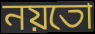
নয়তো